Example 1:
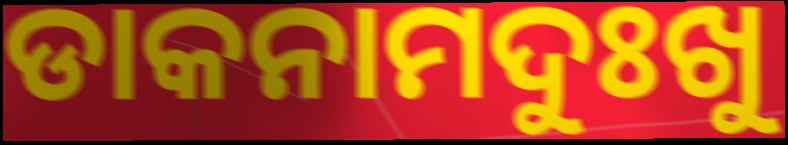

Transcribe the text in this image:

ଡାକନାମଦୁଃଖୁ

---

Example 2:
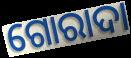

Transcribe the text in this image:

ଗୋରାଦା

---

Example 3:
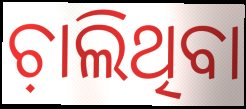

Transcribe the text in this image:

ଚ଼ାଲିଥିବା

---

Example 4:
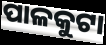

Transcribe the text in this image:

ପାଳକୁଟା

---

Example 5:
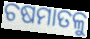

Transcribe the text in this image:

ଚଷମାତଳୁ